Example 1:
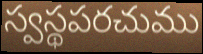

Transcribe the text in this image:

స్వస్థపరచుము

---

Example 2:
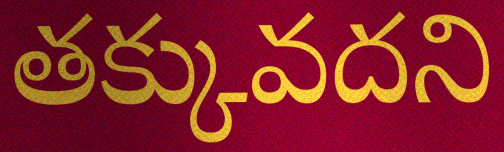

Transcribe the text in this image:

తక్కువదని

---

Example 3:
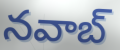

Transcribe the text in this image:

నవాబ్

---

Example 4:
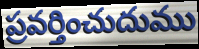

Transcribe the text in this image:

ప్రవర్తించుదుము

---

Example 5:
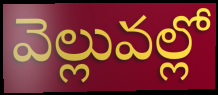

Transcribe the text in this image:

వెల్లువల్లో